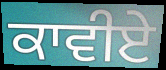
ਕਾਵੀਏ